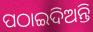
ପଠାଇଦିଅନ୍ତି